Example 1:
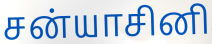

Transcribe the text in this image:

சன்யாசினி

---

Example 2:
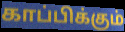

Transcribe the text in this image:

காப்பிக்கும்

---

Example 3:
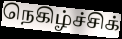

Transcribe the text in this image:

நெகிழ்ச்சிக்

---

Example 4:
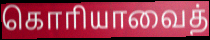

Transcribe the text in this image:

கொரியாவைத்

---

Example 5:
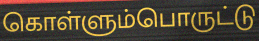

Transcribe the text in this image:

கொள்ளும்பொருட்டு